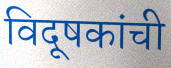
विदूषकांची